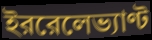
ইররেলেভ্যাণ্ট